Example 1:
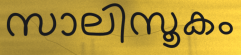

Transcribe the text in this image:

സാലിസൂകം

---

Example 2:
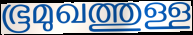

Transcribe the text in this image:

ഭൂമുഖത്തുള്ള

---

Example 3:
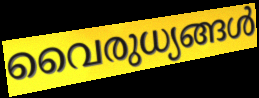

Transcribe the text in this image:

വൈരുധ്യങ്ങൾ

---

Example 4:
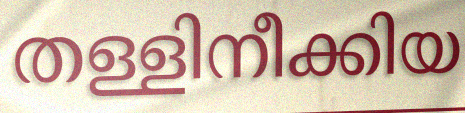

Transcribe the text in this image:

തള്ളിനീക്കിയ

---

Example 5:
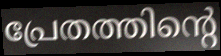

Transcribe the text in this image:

പ്രേതത്തിന്റെ